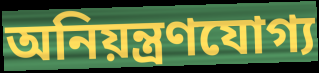
অনিয়ন্ত্রণযোগ্য